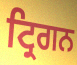
ਟ੍ਰਿਗਨ